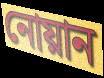
নোয়ান